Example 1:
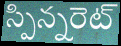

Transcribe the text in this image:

స్పిన్నరెట్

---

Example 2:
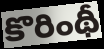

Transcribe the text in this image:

కొరింథీ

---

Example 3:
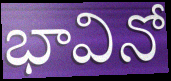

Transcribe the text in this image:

భావినో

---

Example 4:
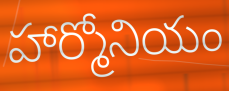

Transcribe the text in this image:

హార్మోనియం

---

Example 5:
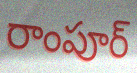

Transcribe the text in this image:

రాంపూర్